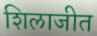
शिलाजीत